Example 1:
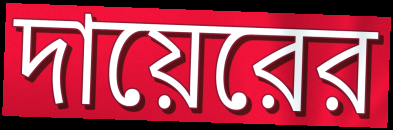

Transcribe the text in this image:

দায়েরের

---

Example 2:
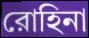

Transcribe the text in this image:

রোহিনা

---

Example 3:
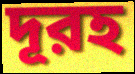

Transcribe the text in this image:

দূরহ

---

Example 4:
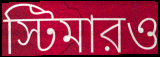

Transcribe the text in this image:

স্টিমারও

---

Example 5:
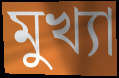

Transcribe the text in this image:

মুখ্যা